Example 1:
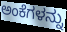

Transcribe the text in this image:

ಅಂಕೆಗಳನ್ನು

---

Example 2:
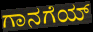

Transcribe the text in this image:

ಗಾನಗೆಯ್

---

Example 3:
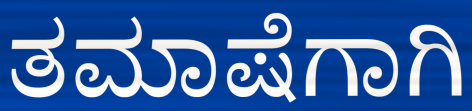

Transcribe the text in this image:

ತಮಾಷೆಗಾಗಿ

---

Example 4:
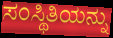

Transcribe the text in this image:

ಸಂಸ್ಥಿತಿಯನ್ನು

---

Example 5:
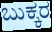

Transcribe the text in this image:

ಬುಕ್ಕರ